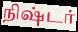
நிஷ்டர்